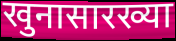
खुनासारख्या